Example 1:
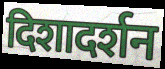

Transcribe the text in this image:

दिशादर्शन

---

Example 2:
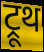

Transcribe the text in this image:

ट्रूथ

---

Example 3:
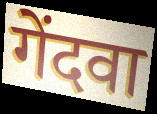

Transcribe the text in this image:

गेंदवा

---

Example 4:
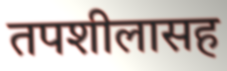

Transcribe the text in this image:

तपशीलासह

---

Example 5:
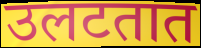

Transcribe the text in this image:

उलटतात